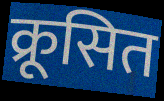
क्रूसित